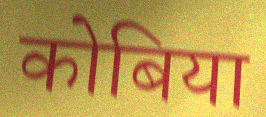
कोबिया